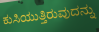
ಕುಸಿಯುತ್ತಿರುವುದನ್ನು